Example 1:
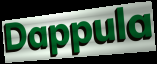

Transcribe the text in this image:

Dappula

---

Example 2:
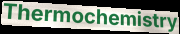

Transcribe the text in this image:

Thermochemistry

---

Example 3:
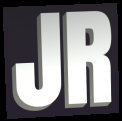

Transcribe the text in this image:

JR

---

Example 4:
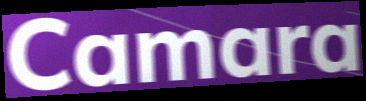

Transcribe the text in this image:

Camara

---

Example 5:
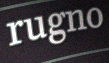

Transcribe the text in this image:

rugno